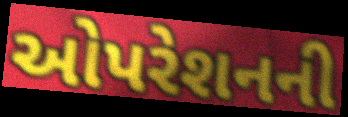
ઓપરેશનની